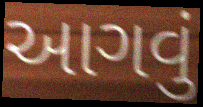
આગવું